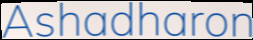
Ashadharon